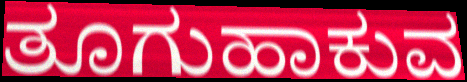
ತೂಗುಹಾಕುವ